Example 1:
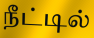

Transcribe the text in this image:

நீட்டில்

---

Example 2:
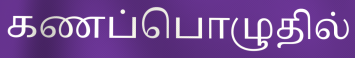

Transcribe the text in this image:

கணப்பொழுதில்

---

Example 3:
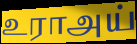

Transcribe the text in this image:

உராஅய்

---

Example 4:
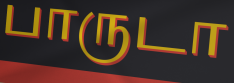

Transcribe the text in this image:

பாருடா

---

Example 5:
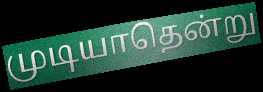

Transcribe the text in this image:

முடியாதென்று